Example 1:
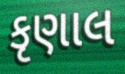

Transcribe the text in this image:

કૃણાલ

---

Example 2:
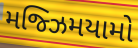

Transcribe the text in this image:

મજ્ઝિમયામો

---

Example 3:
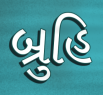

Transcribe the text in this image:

બ્રુહિ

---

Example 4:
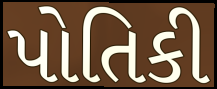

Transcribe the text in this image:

પોતિકી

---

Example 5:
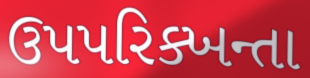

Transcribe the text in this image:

ઉપપરિક્ખન્તા